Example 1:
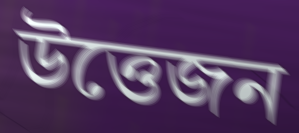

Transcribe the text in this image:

উত্তেজন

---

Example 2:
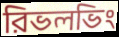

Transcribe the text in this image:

রিভলভিং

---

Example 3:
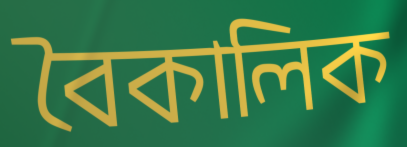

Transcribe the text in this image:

বৈকালিক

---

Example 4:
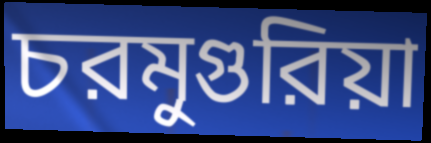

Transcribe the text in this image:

চরমুগুরিয়া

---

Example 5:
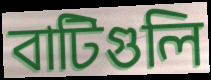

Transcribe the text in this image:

বাটিগুলি